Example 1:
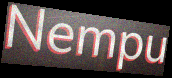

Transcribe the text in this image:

Nempu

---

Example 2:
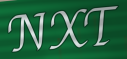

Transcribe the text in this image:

NXT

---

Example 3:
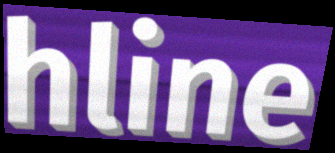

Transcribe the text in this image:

hline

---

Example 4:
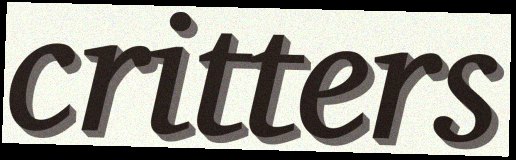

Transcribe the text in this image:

critters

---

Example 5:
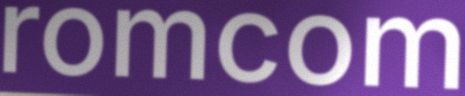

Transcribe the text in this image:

romcom